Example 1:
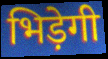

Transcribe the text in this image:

भिड़ेगी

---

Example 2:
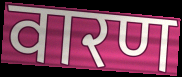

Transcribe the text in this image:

वारण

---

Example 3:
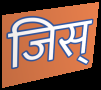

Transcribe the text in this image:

जिस्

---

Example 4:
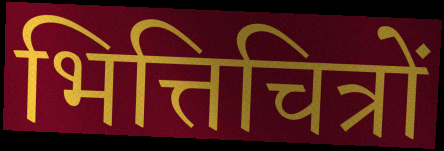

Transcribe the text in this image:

भित्तिचित्रों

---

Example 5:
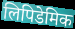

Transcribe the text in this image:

लिपिडेमिक